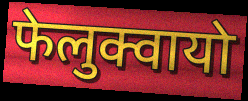
फेलुक्वायो